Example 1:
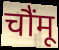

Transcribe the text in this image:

चौंमू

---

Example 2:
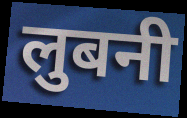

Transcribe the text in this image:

लुबनी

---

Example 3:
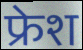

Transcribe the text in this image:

फ्रेश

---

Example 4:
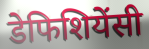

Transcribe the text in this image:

डेफिशियेंसी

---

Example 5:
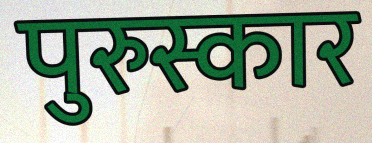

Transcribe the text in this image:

पुरुस्‍कार